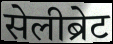
सेलीब्रेट